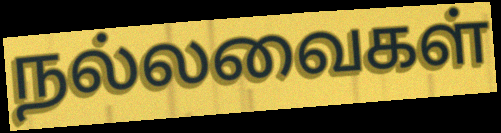
நல்லவைகள்